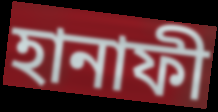
হানাফী